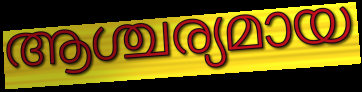
ആശ്ചര്യമായ